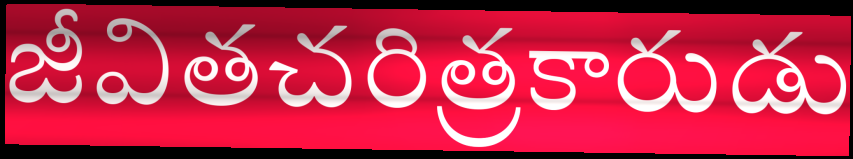
జీవితచరిత్రకారుడు